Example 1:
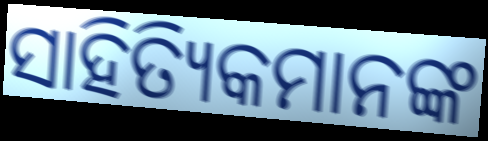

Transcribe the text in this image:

ସାହିତ୍ୟିକମାନଙ୍କ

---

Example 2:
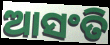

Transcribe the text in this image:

ଆସଂତି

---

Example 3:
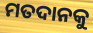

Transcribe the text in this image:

ମତଦାନକୁ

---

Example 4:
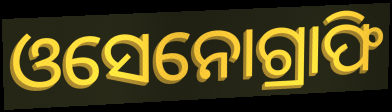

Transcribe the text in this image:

ଓସେନୋଗ୍ରାଫି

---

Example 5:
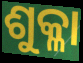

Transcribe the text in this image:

ଶୁକ୍ଳା